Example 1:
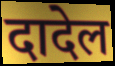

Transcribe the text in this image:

दादेल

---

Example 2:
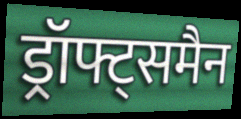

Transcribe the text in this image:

ड्रॉफ्ट्समैन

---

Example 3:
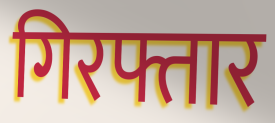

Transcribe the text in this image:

गिरफ्तार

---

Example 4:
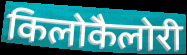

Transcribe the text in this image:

किलोकैलोरी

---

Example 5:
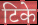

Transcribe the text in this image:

टिके